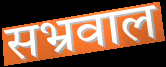
सभ्रवाल